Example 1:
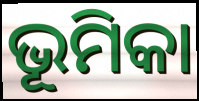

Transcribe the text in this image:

ଭୂମିକା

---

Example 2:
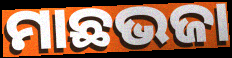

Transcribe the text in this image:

ମାଛଭଜା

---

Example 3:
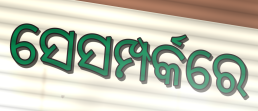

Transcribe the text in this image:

ସେସମ୍ପର୍କରେ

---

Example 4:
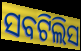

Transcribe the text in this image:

ସବଟିଲିସ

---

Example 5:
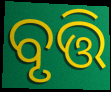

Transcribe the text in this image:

ବୃତ୍ତି